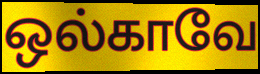
ஒல்காவே